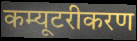
कम्यूटरीकरण